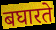
बघारते